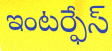
ఇంటర్ఫేస్